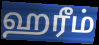
ஹரீம்